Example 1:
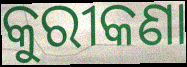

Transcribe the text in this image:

କୁରୀକଣା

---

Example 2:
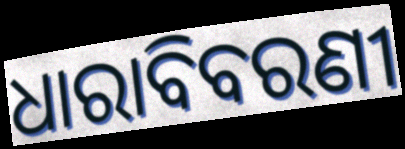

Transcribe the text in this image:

ଧାରାବିବରଣୀ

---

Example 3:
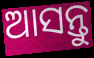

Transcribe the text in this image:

ଆସନ୍ତୁ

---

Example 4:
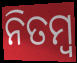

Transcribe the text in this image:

ନିତମ୍ୱ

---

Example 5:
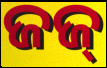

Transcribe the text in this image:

ଜଜ୍